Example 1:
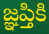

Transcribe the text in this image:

జ్ఞప్తికి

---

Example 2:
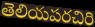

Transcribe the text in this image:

తెలియపరచిరి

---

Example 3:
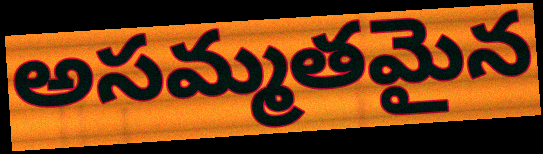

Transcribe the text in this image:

అసమ్మతమైన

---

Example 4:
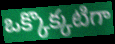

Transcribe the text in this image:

ఒక్కొక్కటిగా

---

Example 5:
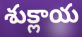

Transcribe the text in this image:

శుక్లాయ